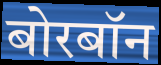
बोरबॉन